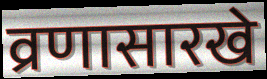
व्रणासारखे